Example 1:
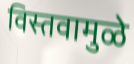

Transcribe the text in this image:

विस्तवामुळे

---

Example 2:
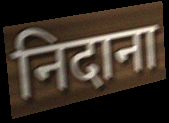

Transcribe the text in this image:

निदाना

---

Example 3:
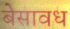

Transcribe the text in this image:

बेसावध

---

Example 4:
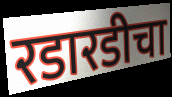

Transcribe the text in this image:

रडारडीचा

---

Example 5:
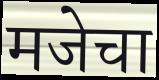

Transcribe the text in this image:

मजेचा